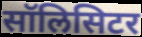
सॉलिसिटर